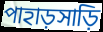
পাহাড়সাড়ি